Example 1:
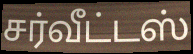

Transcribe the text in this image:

சர்வீட்டஸ்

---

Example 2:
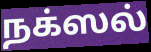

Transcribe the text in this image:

நக்ஸல்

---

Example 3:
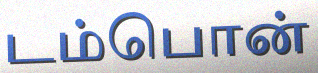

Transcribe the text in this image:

டம்பொன்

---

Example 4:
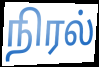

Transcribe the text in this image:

நிரல்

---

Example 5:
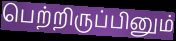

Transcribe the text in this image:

பெற்றிருப்பினும்